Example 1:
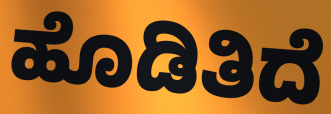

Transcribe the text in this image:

ಹೊಡಿತಿದೆ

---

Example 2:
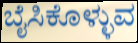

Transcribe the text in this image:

ಬೈಸಿಕೊಳ್ಳುವ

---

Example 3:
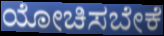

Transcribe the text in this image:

ಯೋಚಿಸಬೇಕೆ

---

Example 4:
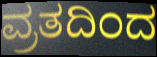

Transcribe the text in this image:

ವ್ರತದಿಂದ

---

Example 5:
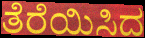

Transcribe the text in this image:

ತೆರೆಯಿಸಿದ